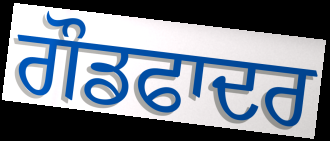
ਗੌਡਫਾਦਰ